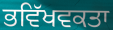
ਭਵਿੱਖਵਕਤਾ